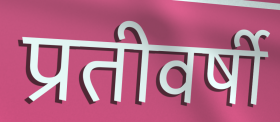
प्रतीवर्षी